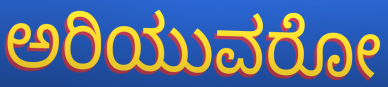
ಅರಿಯುವರೋ